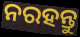
ନରହନ୍ତୁ